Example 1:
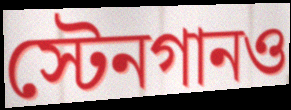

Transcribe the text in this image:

স্টেনগানও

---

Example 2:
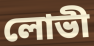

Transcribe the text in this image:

লোভী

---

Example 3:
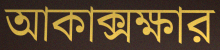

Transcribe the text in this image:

আকাক্সক্ষার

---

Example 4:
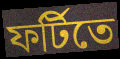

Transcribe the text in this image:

ফর্টিতে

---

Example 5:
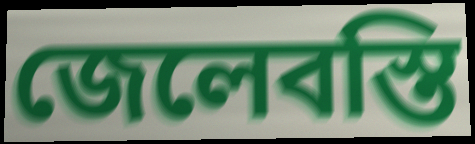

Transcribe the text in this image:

জেলেবস্তি